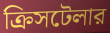
ক্রিসটেলার